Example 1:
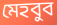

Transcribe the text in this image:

মেহবুব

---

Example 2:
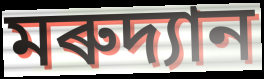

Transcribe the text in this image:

মৰুদ্যান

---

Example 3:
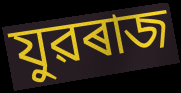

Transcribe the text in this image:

যুৱৰাজ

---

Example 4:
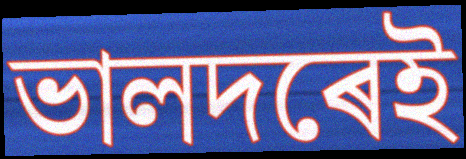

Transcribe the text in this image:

ভালদৰেই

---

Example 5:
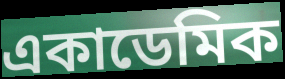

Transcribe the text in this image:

একাডেমিক